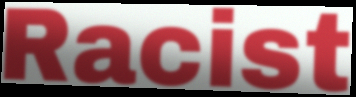
Racist